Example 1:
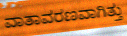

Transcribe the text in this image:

ವಾತಾವರಣವಾಗಿತ್ತು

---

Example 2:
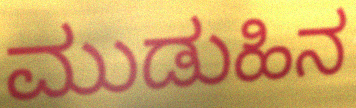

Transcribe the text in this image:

ಮುಡುಹಿನ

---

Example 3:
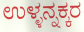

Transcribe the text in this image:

ಉಳ್ಳನ್ನಕ್ಕರ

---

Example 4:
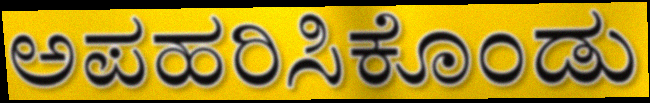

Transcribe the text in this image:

ಅಪಹರಿಸಿಕೊಂಡು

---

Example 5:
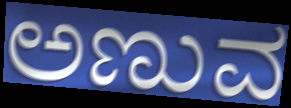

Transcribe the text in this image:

ಅಣುವ